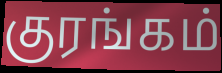
குரங்கம்